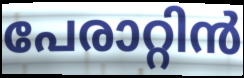
പേരാറ്റിൻ